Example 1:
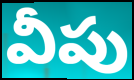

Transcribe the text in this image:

వీపు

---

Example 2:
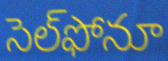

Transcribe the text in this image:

సెల్‌ఫోనూ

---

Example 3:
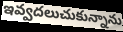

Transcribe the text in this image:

ఇవ్వదలుచుకున్నాను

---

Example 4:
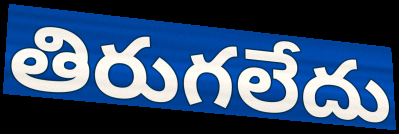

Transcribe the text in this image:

తిరుగలేదు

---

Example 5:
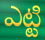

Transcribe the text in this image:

ఎట్టి